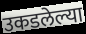
उकडलेल्या